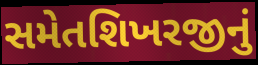
સમેતશિખરજીનું